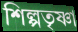
শিল্পতৃষ্ণা